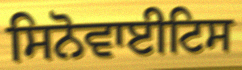
ਸਿਨੋਵਾਈਟਿਸ